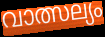
വാത്സല്യം